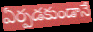
ఏర్పడకుండానే